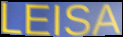
LEISA